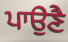
ਪਾਉਣੈ